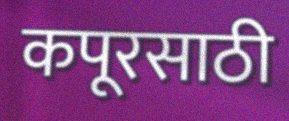
कपूरसाठी